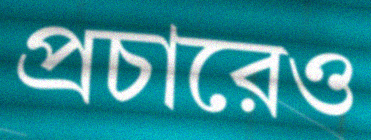
প্রচারেও